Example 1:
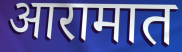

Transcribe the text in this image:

आरामात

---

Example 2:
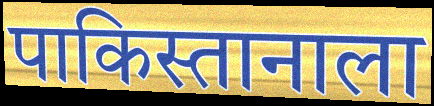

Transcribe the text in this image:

पाकिस्तानाला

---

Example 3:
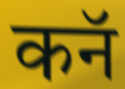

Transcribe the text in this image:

कनॅ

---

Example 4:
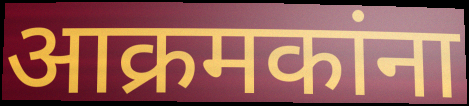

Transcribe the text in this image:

आक्रमकांना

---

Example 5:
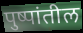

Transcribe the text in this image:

पुष्पांतील